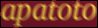
apatoto